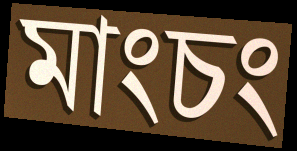
মাংচং